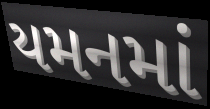
યમનમાં